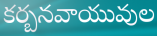
కర్బనవాయువుల